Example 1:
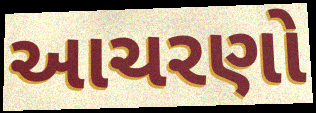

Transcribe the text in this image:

આચરણો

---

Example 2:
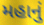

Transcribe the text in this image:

મહાનું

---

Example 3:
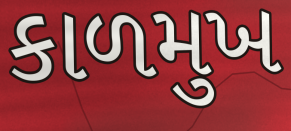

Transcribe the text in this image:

કાળમુખ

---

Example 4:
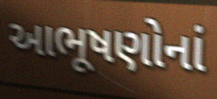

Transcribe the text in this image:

આભૂષણોનાં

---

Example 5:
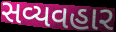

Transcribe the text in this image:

સવ્યવહાર